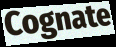
Cognate